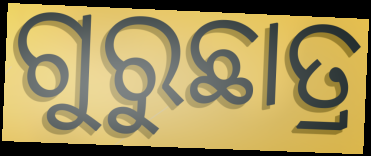
ଗୁରୁଛାତ୍ର